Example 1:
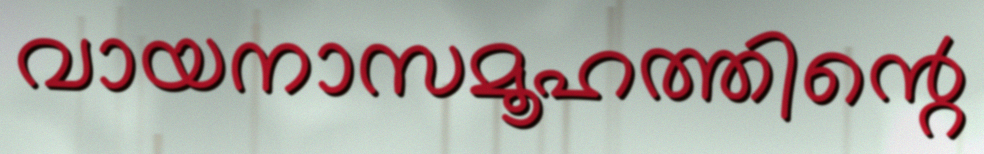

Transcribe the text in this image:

വായനാസമൂഹത്തിന്റെ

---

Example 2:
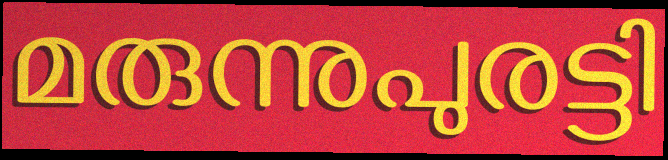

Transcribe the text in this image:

മരുന്നുപുരട്ടി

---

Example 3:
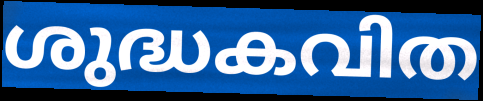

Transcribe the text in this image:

ശുദ്ധകവിത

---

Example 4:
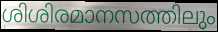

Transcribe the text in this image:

ശിശിരമാനസത്തിലും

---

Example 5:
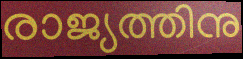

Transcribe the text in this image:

രാജ്യത്തിനു